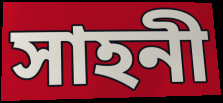
সাহনী